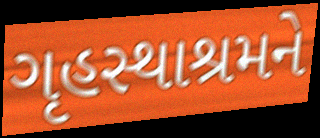
ગૃહસ્થાશ્રમને